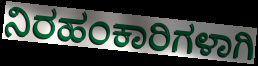
ನಿರಹಂಕಾರಿಗಳಾಗಿ